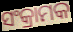
ସଂକ୍ରାମକ